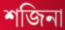
শজিনা